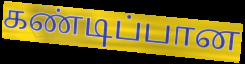
கண்டிப்பான